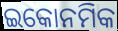
ଇକୋନମିକ